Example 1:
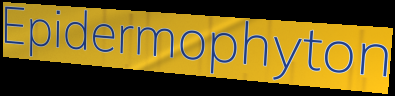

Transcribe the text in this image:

Epidermophyton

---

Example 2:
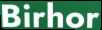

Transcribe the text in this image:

Birhor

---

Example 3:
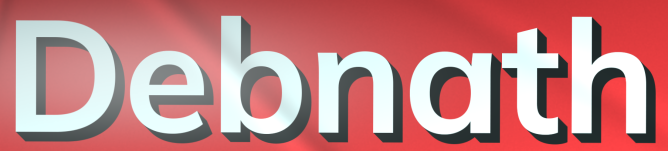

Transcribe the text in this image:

Debnath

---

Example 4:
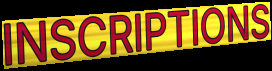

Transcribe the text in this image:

INSCRIPTIONS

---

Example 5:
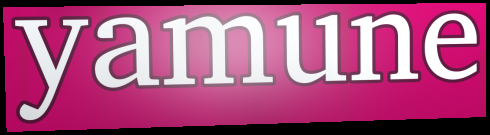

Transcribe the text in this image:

yamune